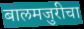
बालमजुरीचा